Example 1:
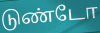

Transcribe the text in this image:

டுண்டோ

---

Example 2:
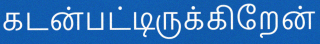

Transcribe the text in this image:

கடன்பட்டிருக்கிறேன்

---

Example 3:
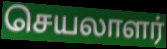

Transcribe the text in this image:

செயலாளர்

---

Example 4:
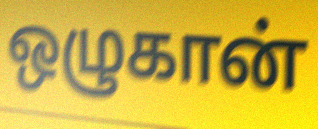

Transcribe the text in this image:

ஒழுகான்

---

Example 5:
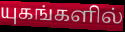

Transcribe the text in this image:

யுகங்களில்